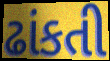
ઢાંકતી